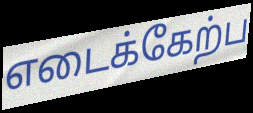
எடைக்கேற்ப